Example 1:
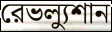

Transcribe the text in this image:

রেভল্যুশান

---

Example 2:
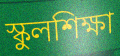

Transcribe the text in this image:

স্কুলশিক্ষা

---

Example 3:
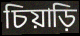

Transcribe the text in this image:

চিয়াড়ি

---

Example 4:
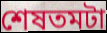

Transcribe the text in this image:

শেষতমটা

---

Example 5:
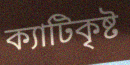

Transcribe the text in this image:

ক্যাটিকৃষ্ট